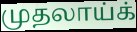
முதலாய்க்